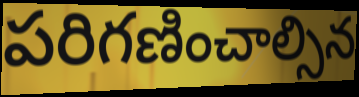
పరిగణించాల్సిన